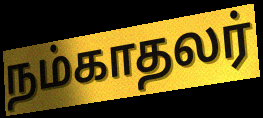
நம்காதலர்